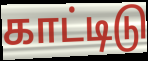
காட்டிடு